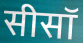
सीसॉ